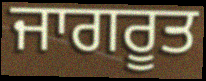
ਜਾਗਰੂਤ